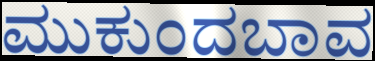
ಮುಕುಂದಬಾವ